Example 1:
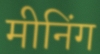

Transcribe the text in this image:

मीनिंग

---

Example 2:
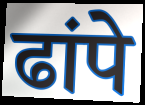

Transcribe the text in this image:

ढांपे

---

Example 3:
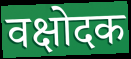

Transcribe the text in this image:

वक्षोदक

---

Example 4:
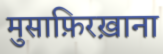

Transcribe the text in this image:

मुसाफ़िरख़ाना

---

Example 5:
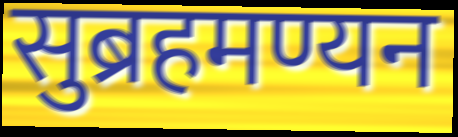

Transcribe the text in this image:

सुब्रहमण्यन